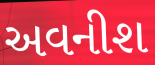
અવનીશ